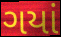
ગયાં